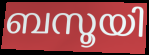
ബസൂയി